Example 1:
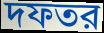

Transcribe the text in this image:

দফতর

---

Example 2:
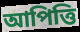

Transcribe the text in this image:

আপিত্তি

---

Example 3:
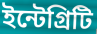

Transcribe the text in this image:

ইন্টেগ্রিটি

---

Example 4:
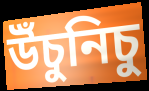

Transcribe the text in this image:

উঁচুনিচু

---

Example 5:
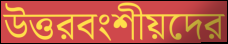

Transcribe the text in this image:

উত্তরবংশীয়দের